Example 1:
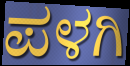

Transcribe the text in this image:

ಪಳಗಿ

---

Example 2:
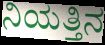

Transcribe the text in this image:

ನಿಯತ್ತಿನ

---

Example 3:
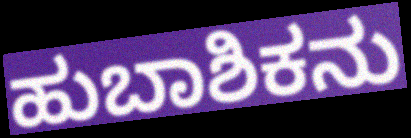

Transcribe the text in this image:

ಹುಬಾಶಿಕನು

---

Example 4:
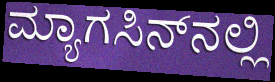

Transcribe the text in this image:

ಮ್ಯಾಗಸಿನ್‍ನಲ್ಲಿ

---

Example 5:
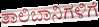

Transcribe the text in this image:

ತಾಲಿಬಾನಿಗಳಿಗೆ